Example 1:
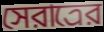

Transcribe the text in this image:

সেরাত্রের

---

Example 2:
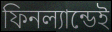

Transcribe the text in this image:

ফিনল্যান্ডেই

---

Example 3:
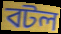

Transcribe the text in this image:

বটল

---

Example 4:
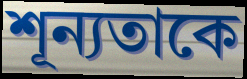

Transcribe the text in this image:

শূন্যতাকে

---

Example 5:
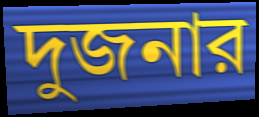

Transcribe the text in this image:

দুজনার